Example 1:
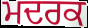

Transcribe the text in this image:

ਮਦਰਕ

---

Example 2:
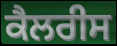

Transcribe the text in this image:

ਕੈਲਰੀਸ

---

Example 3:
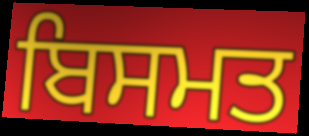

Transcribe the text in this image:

ਬਿਸਮਤ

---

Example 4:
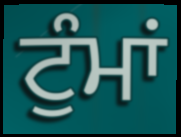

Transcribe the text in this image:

ਟੁੰਮਾਂ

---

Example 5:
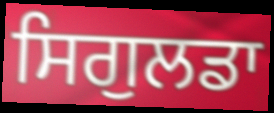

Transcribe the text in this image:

ਸਿਗੁਲਡਾ